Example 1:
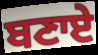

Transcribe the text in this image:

ਬਣਾਏ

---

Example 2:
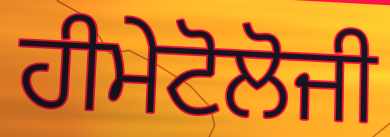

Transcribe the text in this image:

ਹੀਮੇਟੋਲੋਜੀ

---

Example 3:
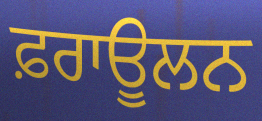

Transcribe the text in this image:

ਫ਼ਰਾਊਲਨ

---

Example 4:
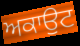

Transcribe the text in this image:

ਅਕਾਉਟ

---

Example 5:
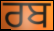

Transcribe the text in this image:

ਰਬ